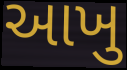
આખુ